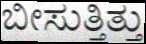
ಬೀಸುತ್ತಿತ್ತು